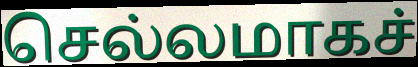
செல்லமாகச்